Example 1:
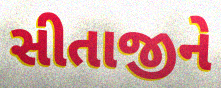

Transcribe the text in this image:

સીતાજીને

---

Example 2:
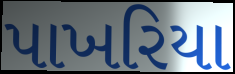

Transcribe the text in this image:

પાખરિયા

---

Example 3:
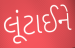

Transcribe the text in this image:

લૂંટાઈને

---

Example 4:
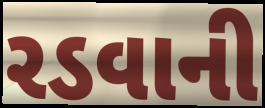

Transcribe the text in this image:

રડવાની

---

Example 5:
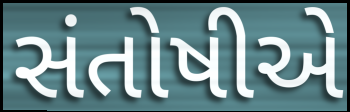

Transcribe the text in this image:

સંતોષીએ